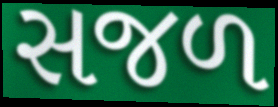
સજળ